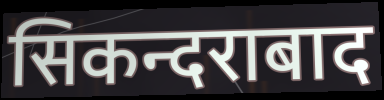
सिकन्दराबाद